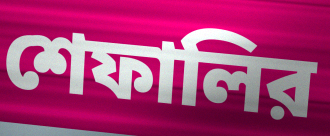
শেফালির